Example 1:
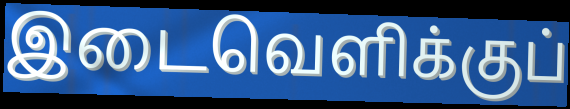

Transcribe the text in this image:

இடைவெளிக்குப்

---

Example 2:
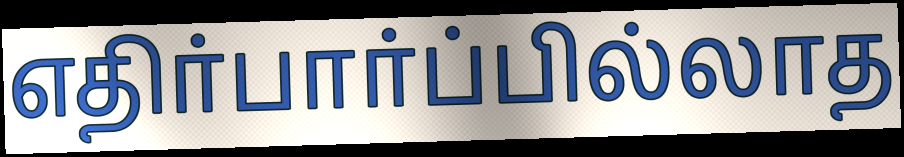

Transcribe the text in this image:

எதிர்பார்ப்பில்லாத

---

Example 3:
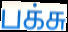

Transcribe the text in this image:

பக்சு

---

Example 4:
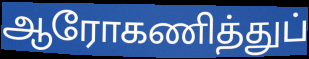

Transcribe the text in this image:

ஆரோகணித்துப்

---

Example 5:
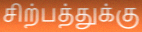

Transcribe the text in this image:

சிற்பத்துக்கு